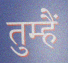
तुम्हैं